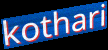
kothari